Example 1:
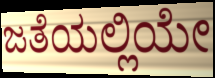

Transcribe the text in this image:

ಜತೆಯಲ್ಲಿಯೇ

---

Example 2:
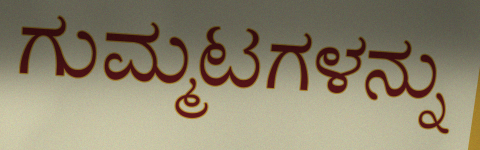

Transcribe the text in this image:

ಗುಮ್ಮಟಗಳನ್ನು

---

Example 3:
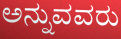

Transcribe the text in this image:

ಅನ್ನುವವರು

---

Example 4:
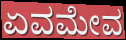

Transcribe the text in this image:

ಏವಮೇವ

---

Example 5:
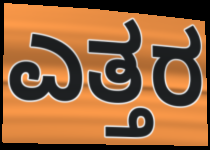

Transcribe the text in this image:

ಎತ್ತರ